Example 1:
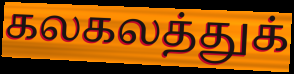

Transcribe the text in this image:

கலகலத்துக்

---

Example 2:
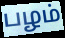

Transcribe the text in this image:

பழம்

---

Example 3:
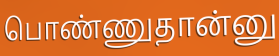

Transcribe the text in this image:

பொண்ணுதான்னு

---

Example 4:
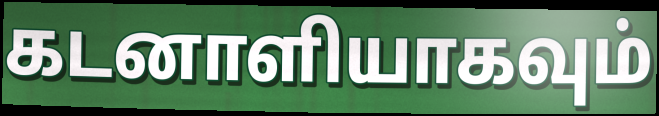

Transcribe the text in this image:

கடனாளியாகவும்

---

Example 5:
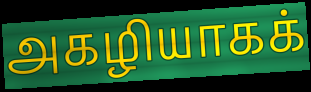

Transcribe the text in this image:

அகழியாகக்